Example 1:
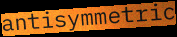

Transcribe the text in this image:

antisymmetric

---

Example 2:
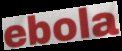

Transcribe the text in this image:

ebola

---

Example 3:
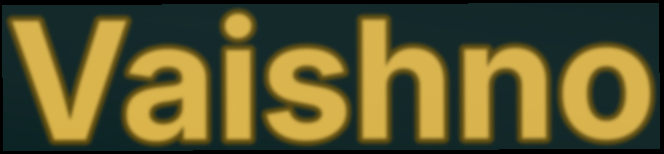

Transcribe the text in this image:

Vaishno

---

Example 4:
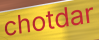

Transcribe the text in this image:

chotdar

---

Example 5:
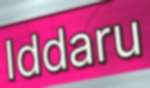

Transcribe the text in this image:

Iddaru